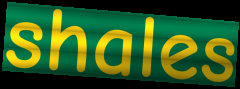
shales